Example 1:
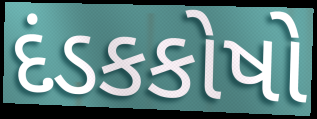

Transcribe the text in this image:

દંડકકોષો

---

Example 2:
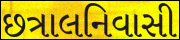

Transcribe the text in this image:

છત્રાલનિવાસી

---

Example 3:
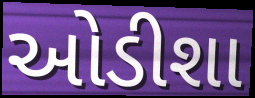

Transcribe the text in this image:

ઓડીશા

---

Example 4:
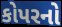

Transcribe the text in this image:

કોપરનો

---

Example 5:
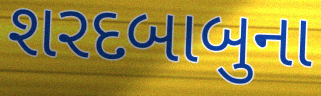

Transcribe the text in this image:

શરદબાબુના